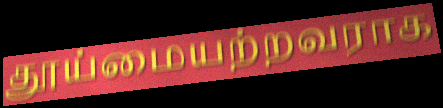
தூய்மையற்றவராக